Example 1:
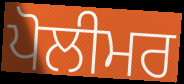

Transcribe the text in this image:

ਪੋਲੀਮਰ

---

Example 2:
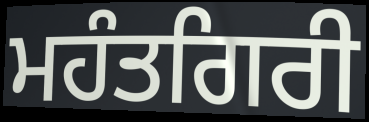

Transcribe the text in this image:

ਮਹੰਤਗਿਰੀ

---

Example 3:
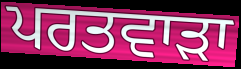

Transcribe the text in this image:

ਪਰਤਵਾੜਾ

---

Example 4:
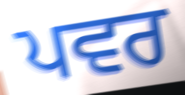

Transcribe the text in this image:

ਪਵਰ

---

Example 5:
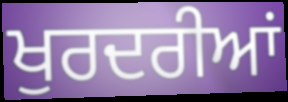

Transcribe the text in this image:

ਖੁਰਦਰੀਆਂ